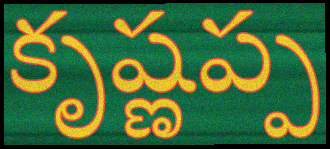
కృష్ణప్ప